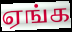
ஏங்க